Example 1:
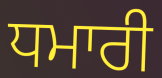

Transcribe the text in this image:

ਧਮਾਰੀ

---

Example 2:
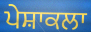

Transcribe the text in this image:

ਪੇਸ਼ਾਕਲਾ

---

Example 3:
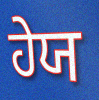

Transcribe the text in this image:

ਹੇਯ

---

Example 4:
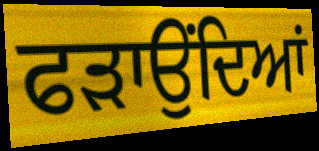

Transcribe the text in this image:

ਫੜਾਉਂਦਿਆਂ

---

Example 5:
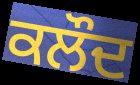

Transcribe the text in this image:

ਕਲੌਦ